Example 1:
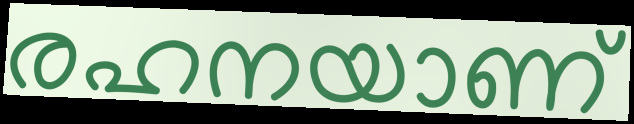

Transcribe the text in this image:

രഹനയാണ്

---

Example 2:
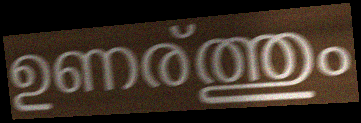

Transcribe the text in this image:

ഉണര്ത്തും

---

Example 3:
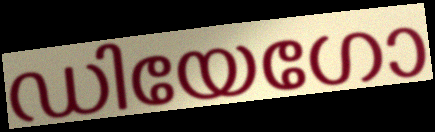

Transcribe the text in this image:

ഡിയേഗോ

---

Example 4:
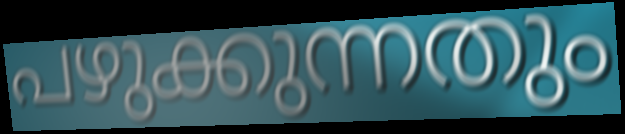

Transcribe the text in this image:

പഴുക്കുന്നതും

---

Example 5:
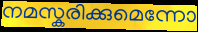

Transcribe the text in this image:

നമസ്കരിക്കുമെന്നോ